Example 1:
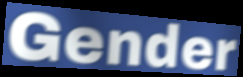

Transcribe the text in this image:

Gender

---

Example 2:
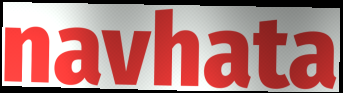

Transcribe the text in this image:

navhata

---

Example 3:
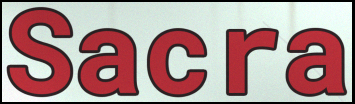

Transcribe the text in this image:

Sacra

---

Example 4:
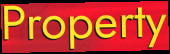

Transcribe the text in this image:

Property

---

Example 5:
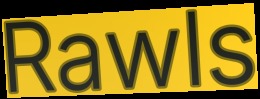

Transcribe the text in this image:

Rawls